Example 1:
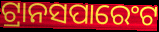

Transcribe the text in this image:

ଟ୍ରାନସପାରେଂଟ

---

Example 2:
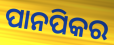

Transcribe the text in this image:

ପାନପିକର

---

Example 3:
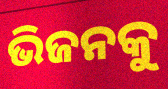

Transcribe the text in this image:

ଭିଜନକୁ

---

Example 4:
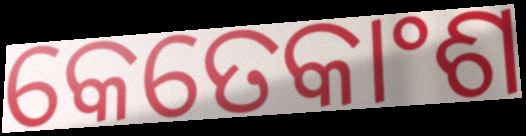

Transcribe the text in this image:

କେତେକାଂଶ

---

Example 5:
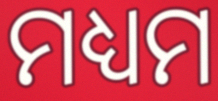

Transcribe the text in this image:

ମଧ୍ୟମ